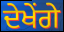
ਦੇਖੇਂਗੇ